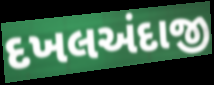
દખલઅંદાજી